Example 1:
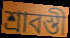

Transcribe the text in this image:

শ্রাবস্তী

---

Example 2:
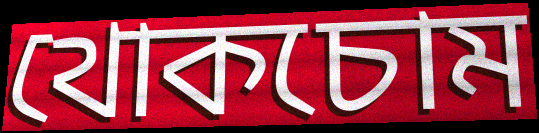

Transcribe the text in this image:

থোকচোম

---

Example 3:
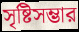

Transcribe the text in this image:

সৃষ্টিসম্ভার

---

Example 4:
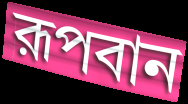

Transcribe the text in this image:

রূপবান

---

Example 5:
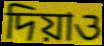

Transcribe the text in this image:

দিয়াও